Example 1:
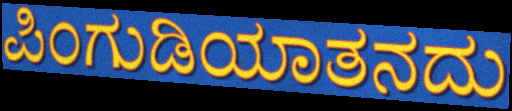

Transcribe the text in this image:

ಪಿಂಗುಡಿಯಾತನದು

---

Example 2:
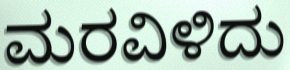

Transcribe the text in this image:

ಮರವಿಳಿದು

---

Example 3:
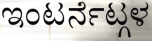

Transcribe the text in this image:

ಇಂಟರ್ನೆಟ್ಗಳ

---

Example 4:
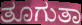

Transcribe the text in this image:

ತೂಗುತಾ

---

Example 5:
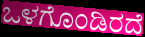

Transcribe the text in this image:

ಒಳಗೊಂಡಿರದೆ